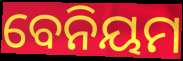
ବେନିୟମ